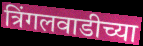
त्रिंगलवाडीच्या